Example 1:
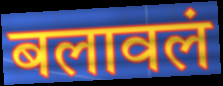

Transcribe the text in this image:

बलावलं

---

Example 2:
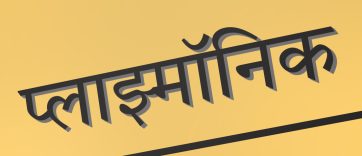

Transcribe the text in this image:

प्लाझ्मॉनिक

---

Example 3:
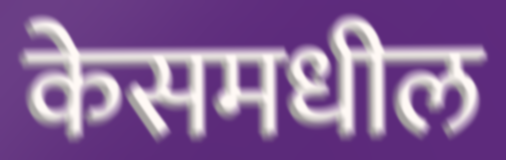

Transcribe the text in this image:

केसमधील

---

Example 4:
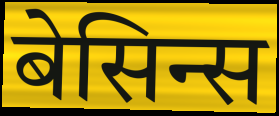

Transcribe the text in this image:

बेसिन्स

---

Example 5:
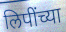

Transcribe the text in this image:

लिपींच्या